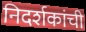
निदर्शकांची